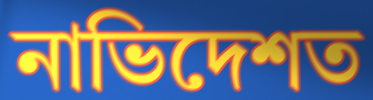
নাভিদেশত